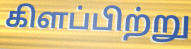
கிளப்பிற்று